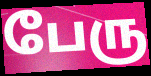
பேரு